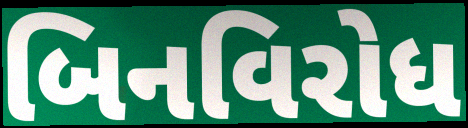
બિનવિરોધ